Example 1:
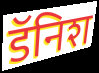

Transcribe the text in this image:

डॅनिश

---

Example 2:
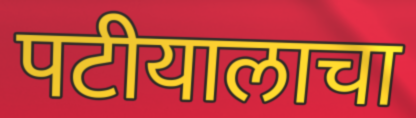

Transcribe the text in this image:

पटीयालाचा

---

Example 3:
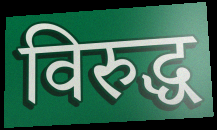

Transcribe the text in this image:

विरुद्ध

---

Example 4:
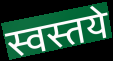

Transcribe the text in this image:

स्वस्तये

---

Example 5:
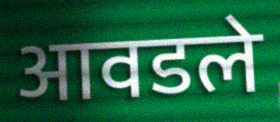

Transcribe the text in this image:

आवडले